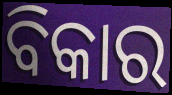
ବିକାର